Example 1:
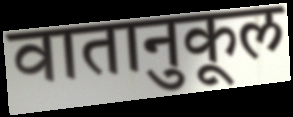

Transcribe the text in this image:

वातानुकूल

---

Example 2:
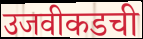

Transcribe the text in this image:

उजवीकडची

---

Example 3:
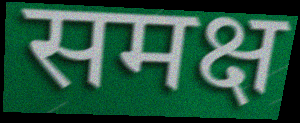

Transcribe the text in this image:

समक्ष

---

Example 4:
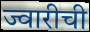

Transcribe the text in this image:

ज्वारीची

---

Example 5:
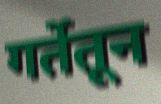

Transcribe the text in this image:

गर्तेतून